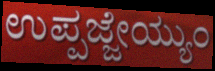
ಉಪ್ಪಜ್ಜೇಯ್ಯುಂ